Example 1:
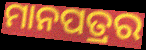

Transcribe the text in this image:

ମାନପତ୍ରର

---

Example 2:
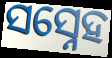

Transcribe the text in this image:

ସସ୍ନେହ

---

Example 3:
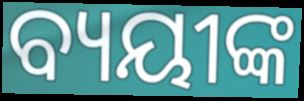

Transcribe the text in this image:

ବ୍ୟୟୀଙ୍କ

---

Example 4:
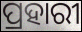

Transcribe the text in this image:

ପ୍ରହାରୀ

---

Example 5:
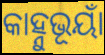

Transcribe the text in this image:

କାହ୍ନୁଭୂୟାଁ